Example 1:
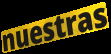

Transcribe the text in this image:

nuestras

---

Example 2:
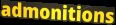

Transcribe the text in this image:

admonitions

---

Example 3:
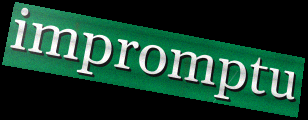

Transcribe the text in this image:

impromptu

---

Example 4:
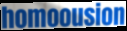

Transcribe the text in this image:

homoousion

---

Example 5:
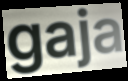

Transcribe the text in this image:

gaja